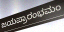
ಜಯಪ್ರಾರಂಭಮಂ